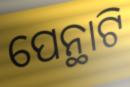
ପେନ୍ଥାଟି